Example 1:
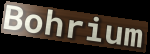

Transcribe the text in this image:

Bohrium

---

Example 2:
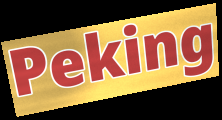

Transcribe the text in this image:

Peking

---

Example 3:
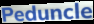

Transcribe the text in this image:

Peduncle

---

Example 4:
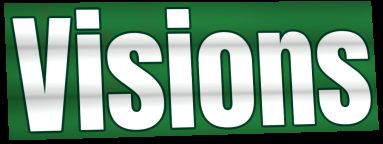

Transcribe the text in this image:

Visions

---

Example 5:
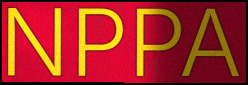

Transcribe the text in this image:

NPPA